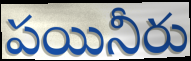
పయినీరు